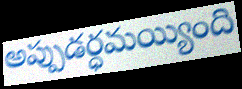
అప్పుడర్ధమయ్యింది